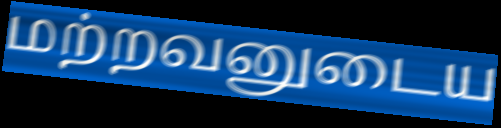
மற்றவனுடைய